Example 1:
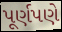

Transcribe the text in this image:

પૂર્ણપણે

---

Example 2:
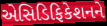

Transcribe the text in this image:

એસિડિફિકેશનને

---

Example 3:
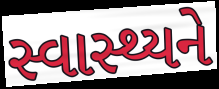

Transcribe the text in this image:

સ્વાસ્થ્યને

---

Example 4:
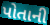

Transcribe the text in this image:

પોતાની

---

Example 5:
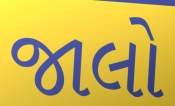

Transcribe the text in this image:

જાલો